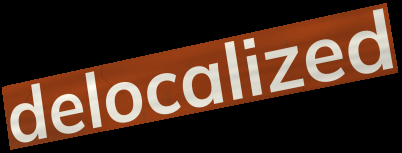
delocalized